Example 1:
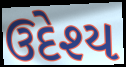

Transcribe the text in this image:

ઉદેશ્ય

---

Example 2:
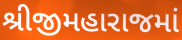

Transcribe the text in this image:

શ્રીજીમહારાજમાં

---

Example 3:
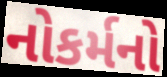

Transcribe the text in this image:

નોકર્મનો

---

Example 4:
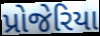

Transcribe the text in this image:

પ્રોજેરિયા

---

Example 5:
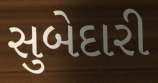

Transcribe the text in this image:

સુબેદારી